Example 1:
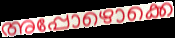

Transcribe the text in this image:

അപ്പോഴൊക്കെ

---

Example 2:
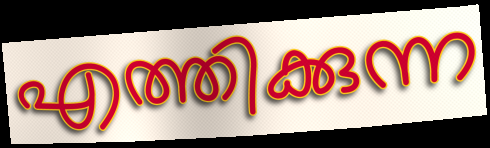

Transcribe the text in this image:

എത്തിക്കുന്ന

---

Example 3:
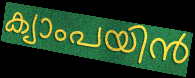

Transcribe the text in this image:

ക്യാംപയിൻ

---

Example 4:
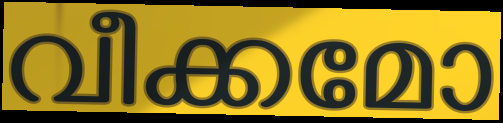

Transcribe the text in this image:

വീക്കമോ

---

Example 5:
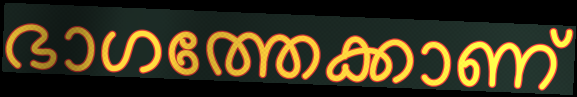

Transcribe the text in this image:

ഭാഗത്തേക്കാണ്